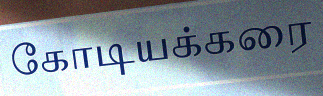
கோடியக்கரை